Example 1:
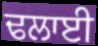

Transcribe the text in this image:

ਢਲਾਈ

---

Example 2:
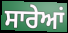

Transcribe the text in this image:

ਸਾਰੇਆਂ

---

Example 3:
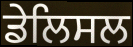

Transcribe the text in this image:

ਡੇਲਿਸਲ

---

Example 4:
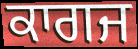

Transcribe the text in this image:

ਕਾਗਜ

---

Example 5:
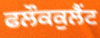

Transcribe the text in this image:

ਫਲੌਕਕੁਲੈਂਟ